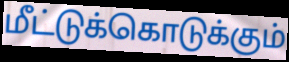
மீட்டுக்கொடுக்கும்